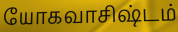
யோகவாசிஷ்டம்